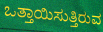
ಒತ್ತಾಯಿಸುತ್ತಿರುವ